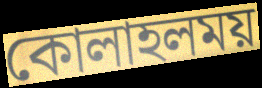
কোলাহলময়